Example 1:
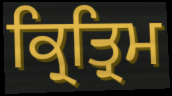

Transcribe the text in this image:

ਕ੍ਰਿਤ੍ਰਿਮ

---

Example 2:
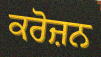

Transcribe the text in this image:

ਕਰੋਜ਼ਨ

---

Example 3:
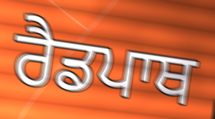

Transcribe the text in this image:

ਰੈਡਪਾਥ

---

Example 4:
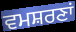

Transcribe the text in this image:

ਵਮਸ਼ਰਣਾਂ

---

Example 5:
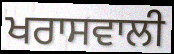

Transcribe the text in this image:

ਖਰਾਸਵਾਲੀ